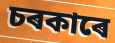
চৰকাৰে